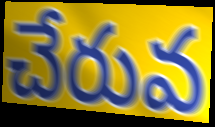
చేరువ